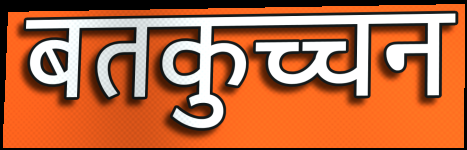
बतकुच्चन